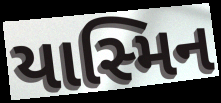
યાસ્મિન